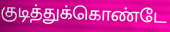
குடித்துக்கொண்டே